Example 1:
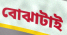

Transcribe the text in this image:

বোঝাটাই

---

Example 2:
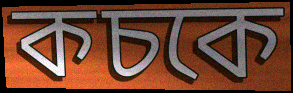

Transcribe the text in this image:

কচকে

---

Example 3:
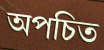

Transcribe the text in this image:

অপচিত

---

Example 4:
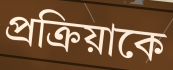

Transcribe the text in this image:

প্রক্রিয়াকে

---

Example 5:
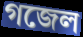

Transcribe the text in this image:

গজেল